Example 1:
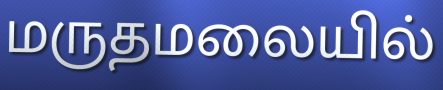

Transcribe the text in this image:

மருதமலையில்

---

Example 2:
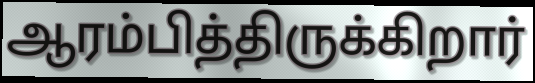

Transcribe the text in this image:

ஆரம்பித்திருக்கிறார்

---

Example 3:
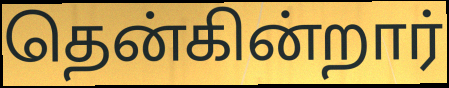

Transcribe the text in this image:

தென்கின்றார்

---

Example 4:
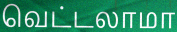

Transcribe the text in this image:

வெட்டலாமா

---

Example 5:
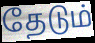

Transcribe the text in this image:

தேடும்